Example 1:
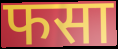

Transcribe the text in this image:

फसा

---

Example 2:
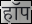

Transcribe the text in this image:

हॉप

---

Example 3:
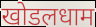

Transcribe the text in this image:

खोडलधाम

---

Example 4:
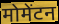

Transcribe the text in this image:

मोमेंटन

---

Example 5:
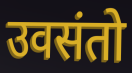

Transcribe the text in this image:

उवसंतो